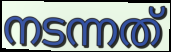
നടന്നത്